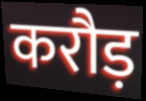
करौड़